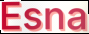
Esna